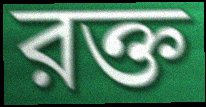
রক্ত